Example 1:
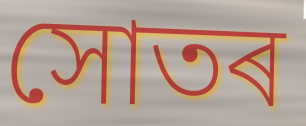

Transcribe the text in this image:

সোতৰ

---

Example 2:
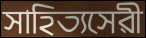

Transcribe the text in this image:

সাহিত্যসেৱী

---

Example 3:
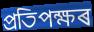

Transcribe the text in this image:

প্ৰতিপক্ষৰ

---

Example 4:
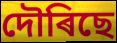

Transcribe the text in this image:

দৌৰিছে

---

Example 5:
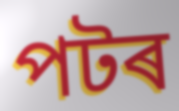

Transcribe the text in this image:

পটৰ